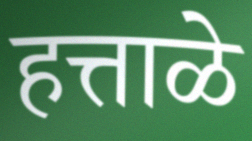
हत्ताळे